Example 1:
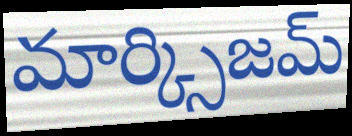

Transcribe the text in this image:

మార్క్సిజమ్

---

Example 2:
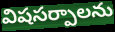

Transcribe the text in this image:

విషసర్పాలను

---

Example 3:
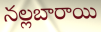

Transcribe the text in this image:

నల్లబారాయి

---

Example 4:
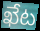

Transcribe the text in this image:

ఖేట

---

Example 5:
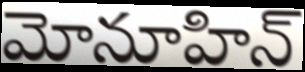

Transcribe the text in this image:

మోనూహిన్